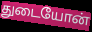
துடையோன்